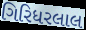
ગિરિધરલાલ